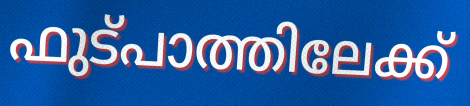
ഫുട്പാത്തിലേക്ക്